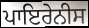
ਪਾਇਰੇਨੀਸ